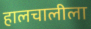
हालचालीला